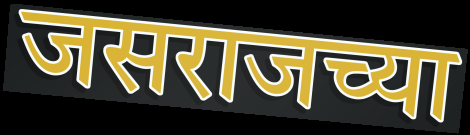
जसराजच्या